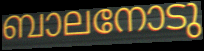
ബാലനോടു